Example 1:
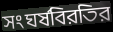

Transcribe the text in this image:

সংঘর্ষবিরতির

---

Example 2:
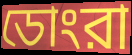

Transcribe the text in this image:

ডোংরা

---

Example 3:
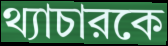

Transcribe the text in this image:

থ্যাচারকে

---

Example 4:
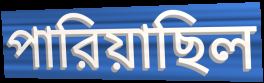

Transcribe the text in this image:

পারিয়াছিল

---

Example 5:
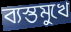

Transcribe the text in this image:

ব্যস্তমুখে